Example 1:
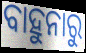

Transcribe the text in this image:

ବାହୁନାରୁ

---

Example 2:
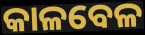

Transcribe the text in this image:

କାଳବେଳ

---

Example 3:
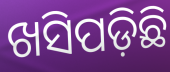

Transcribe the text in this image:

ଖସିପଡ଼ିଛି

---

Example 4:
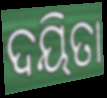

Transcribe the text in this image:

ଦୟିତା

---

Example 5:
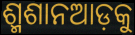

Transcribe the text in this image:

ଶ୍ମଶାନଆଡ଼କୁ